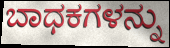
ಬಾಧಕಗಳನ್ನು